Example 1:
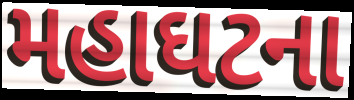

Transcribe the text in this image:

મહાઘટના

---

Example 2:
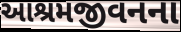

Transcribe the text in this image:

આશ્રમજીવનના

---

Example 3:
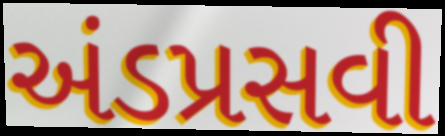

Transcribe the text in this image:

અંડપ્રસવી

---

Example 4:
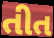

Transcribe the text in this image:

તીત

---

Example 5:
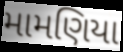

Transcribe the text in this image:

મામણિયા